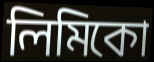
লিমিকো